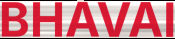
BHAVAI